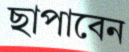
ছাপাবেন